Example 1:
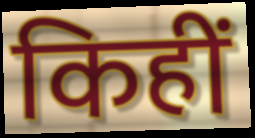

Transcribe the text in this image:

किहीं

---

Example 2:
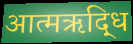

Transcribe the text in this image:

आत्मऋद्धि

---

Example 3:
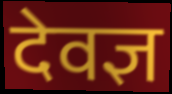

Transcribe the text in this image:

देवज्ञ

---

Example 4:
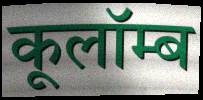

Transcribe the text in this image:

कूलॉम्ब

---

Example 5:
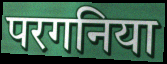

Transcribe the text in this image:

परगनिया